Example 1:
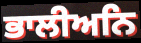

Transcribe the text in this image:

ਭਾਲੀਅਨਿ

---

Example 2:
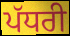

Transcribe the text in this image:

ਪੱਧਰੀ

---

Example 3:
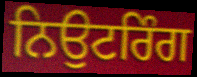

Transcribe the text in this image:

ਨਿਉਟਰਿੰਗ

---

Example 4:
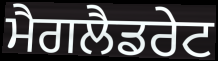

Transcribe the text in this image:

ਮੈਗਲੈਡਰੇਟ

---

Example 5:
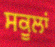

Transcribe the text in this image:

ਸਕੂਲਾਂ